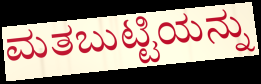
ಮತಬುಟ್ಟಿಯನ್ನು